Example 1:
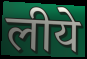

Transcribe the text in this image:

लीये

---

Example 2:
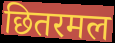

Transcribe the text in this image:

छितरमल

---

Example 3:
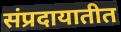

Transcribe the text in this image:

संप्रदायातीत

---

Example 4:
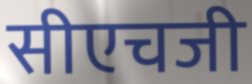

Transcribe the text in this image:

सीएचजी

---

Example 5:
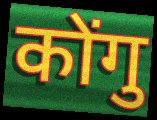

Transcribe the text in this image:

कोंगु